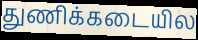
துணிக்கடையில